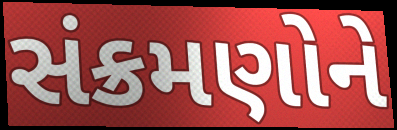
સંક્રમણોને